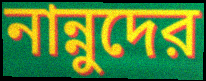
নান্নুদের